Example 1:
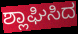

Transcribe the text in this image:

ಶ್ಲಾಘಿಸಿದ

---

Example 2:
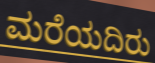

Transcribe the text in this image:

ಮರೆಯದಿರು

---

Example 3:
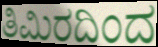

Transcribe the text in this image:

ತಿಮಿರದಿಂದ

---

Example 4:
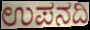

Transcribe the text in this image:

ಉಪನದಿ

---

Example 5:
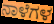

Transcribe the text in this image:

ನಾಳೆಗಳ